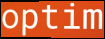
optim